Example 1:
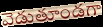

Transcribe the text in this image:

వెడుతూండగా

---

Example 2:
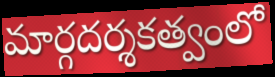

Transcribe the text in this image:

మార్గదర్శకత్వంలో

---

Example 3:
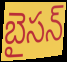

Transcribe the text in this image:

బైసన్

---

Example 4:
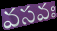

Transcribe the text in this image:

వసవః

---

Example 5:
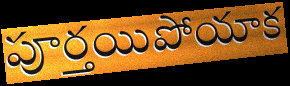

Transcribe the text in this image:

పూర్తయిపోయాక